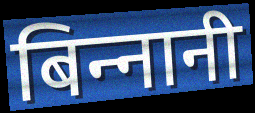
बिन्नानी